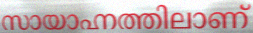
സായാഹ്നത്തിലാണ്